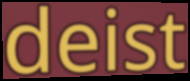
deist